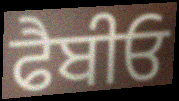
ਫੈਬੀਓ